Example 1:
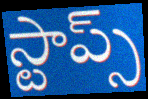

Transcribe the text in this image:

స్టాప్స్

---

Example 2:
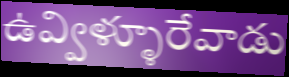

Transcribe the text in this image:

ఉవ్విళ్ళూరేవాడు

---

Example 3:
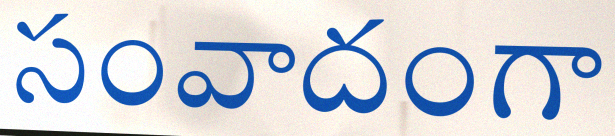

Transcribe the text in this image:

సంవాదంగా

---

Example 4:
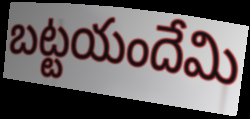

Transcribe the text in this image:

బట్టయందేమి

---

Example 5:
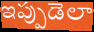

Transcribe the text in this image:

ఇప్పుడెలా